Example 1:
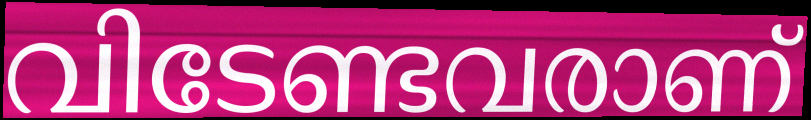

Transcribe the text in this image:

വിടേണ്ടവരാണ്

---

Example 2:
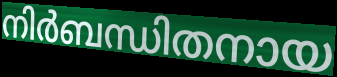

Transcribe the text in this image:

നിർബന്ധിതനായ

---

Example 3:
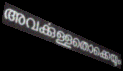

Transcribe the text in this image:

അവൎക്കുള്ളതൊക്കെയും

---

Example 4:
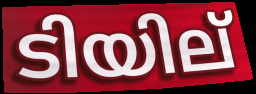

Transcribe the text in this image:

ടിയില്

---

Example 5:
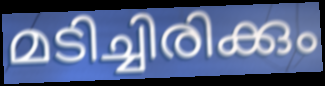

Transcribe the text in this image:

മടിച്ചിരിക്കും